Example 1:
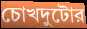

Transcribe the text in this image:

চোখদুটোর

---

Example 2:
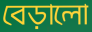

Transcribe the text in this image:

বেড়ালো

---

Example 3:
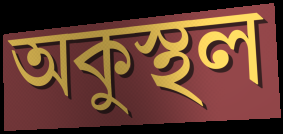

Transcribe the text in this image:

অকুস্থল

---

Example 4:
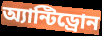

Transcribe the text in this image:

অ্যান্টিড্রোন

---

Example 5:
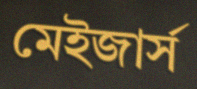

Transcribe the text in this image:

মেইজার্স